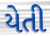
યેતી